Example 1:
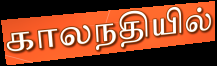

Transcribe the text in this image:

காலநதியில்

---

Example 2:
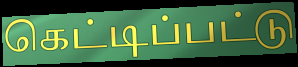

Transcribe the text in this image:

கெட்டிப்பட்டு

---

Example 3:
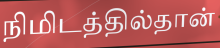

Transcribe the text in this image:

நிமிடத்தில்தான்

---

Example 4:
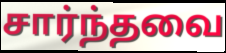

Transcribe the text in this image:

சார்ந்தவை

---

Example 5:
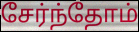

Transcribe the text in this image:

சேர்ந்தோம்